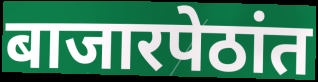
बाजारपेठांत